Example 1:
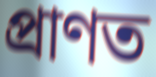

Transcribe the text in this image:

প্ৰাণত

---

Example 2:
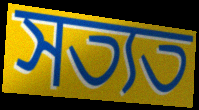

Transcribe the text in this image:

সত্যত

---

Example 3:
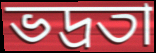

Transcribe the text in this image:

ভদ্ৰতা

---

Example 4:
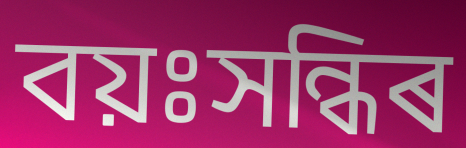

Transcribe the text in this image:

বয়ঃসন্ধিৰ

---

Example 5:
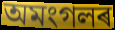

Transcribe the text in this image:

অমংগলৰ